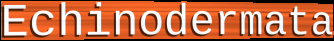
Echinodermata